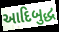
આદિબુદ્ધ